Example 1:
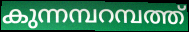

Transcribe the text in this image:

കുന്നമ്പറമ്പത്ത്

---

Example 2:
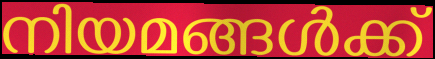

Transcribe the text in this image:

നിയമങ്ങൾക്ക്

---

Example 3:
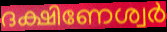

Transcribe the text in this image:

ദക്ഷിണേശ്വർ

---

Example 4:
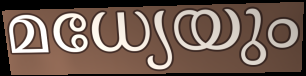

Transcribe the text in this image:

മധ്യേയും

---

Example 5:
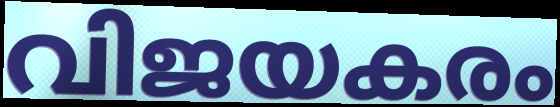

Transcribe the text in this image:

വിജയകരം